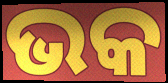
ଭକ